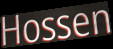
Hossen